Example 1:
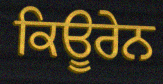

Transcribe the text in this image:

ਕਿਊਰੇਨ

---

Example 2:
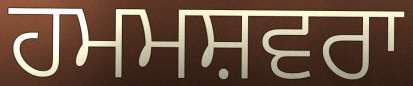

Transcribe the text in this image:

ਹਮਮਸ਼ਵਰਾ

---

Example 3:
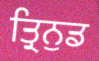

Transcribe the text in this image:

ਤ੍ਰਿਨੁਡ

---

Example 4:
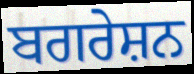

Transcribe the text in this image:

ਬਗਰੇਸ਼ਨ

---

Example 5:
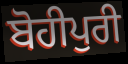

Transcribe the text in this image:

ਬੋਹੀਪੁਰੀ